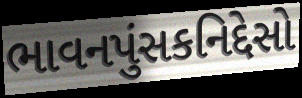
ભાવનપુંસકનિદ્દેસો